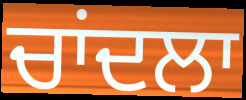
ਚਾਂਦਲਾ